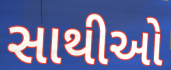
સાથીઓ